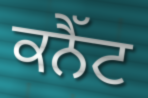
ਕਨੈੱਟ